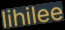
lihilee